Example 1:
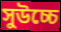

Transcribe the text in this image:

সুউচ্চে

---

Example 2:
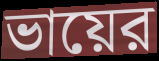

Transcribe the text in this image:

ভায়ের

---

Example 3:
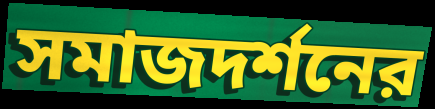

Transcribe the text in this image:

সমাজদর্শনের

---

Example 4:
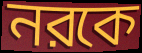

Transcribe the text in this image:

নরকে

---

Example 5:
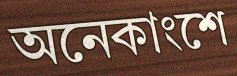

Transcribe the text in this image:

অনেকাংশে